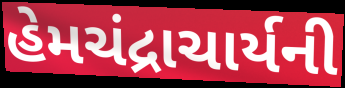
હેમચંદ્રાચાર્યની